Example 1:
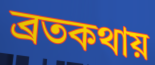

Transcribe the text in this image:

ব্রতকথায়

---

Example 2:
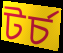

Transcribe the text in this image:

টর্চ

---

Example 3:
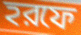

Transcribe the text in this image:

হরফে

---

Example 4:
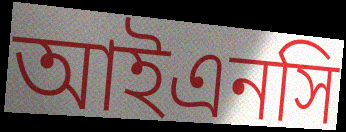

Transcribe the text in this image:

আইএনসি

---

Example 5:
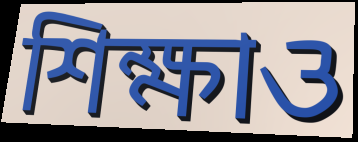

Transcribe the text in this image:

শিক্ষাও